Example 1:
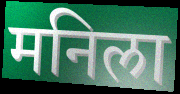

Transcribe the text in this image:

मनिला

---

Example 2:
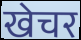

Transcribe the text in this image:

खेचर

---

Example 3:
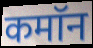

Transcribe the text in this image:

कमॉन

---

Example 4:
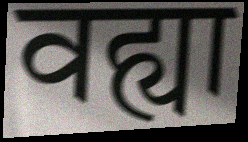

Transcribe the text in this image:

वह्या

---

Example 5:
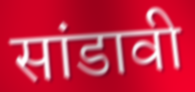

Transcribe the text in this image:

सांडावी